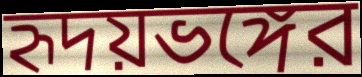
হৃদয়ভঙ্গের